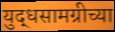
युद्धसामग्रीच्या